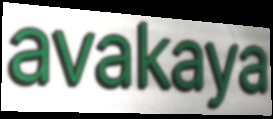
avakaya